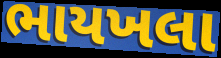
ભાયખલા